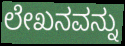
ಲೇಖನವನ್ನು